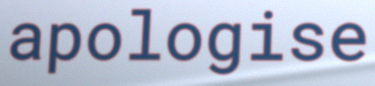
apologise